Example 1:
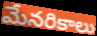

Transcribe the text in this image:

మేనరికాలు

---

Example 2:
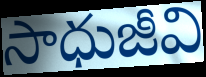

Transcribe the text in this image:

సాధుజీవి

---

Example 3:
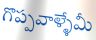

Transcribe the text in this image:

గొప్పవాళ్ళేమీ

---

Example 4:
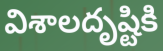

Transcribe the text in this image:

విశాలదృష్టికి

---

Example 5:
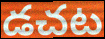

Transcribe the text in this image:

డచట